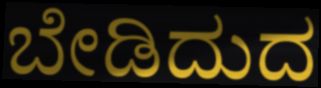
ಬೇಡಿದುದ